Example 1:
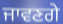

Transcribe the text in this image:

ਜਾਵਣਗੇ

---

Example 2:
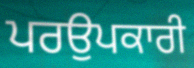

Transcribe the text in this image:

ਪਰਉਪਕਾਰੀ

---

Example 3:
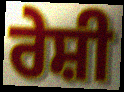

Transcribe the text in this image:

ਰੇਸ਼ੀ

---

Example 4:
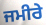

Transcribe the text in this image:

ਜਮੀਰੇ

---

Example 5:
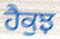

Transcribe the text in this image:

ਹੈਕੁਝ